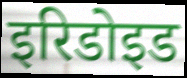
इरिडोइड